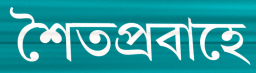
শৈতপ্রবাহে